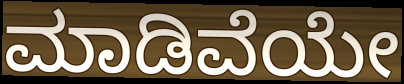
ಮಾಡಿವೆಯೇ